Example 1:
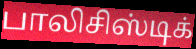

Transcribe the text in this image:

பாலிசிஸ்டிக்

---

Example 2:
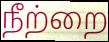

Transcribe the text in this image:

நீற்றை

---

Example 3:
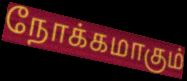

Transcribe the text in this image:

நோக்கமாகும்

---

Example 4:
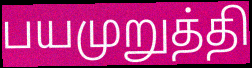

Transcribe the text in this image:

பயமுறுத்தி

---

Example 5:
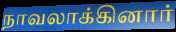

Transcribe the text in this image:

நாவலாக்கினார்